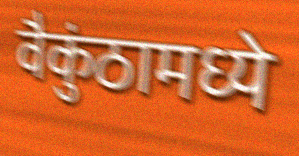
वैकुंठामध्ये